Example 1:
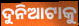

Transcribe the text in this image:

ଦୁନିଆଟାକୁ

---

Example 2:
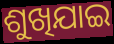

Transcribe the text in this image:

ଶୁଖିଯାଇ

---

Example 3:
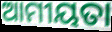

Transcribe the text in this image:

ଆମୀୟତା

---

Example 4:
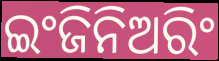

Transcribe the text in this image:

ଇଂଜିନିଅରିଂ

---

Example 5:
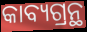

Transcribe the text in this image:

କାବ୍ୟଗ୍ରନ୍ଥ